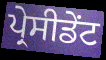
ਪ੍ਰੇਸੀਡੇਂਟ